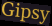
Gipsy